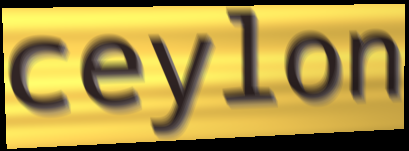
ceylon